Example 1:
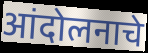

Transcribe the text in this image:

आंदोलनाचे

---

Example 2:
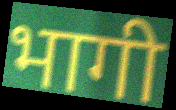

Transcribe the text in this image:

भागी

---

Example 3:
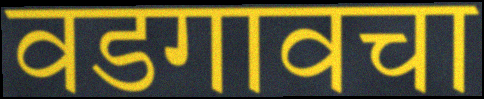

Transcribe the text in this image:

वडगावचा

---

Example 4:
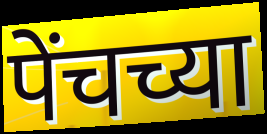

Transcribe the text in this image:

पेंचच्या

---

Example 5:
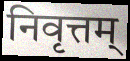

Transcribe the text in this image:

निवृत्तम्